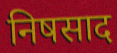
निषसाद